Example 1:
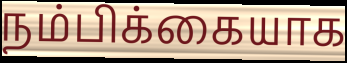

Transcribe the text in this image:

நம்பிக்கையாக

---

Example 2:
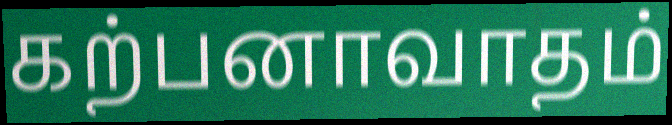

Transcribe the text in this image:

கற்பனாவாதம்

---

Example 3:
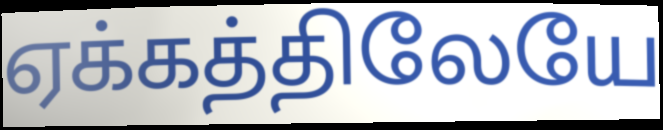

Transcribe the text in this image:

ஏக்கத்திலேயே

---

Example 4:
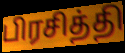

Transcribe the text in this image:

பிரசித்தி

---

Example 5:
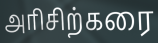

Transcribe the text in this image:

அரிசிற்கரை